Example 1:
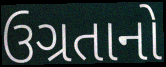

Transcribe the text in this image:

ઉગ્રતાનો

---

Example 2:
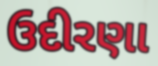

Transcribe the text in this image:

ઉદીરણા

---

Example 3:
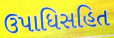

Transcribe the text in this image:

ઉપાધિસહિત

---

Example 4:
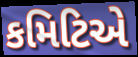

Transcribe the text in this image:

કમિટિએ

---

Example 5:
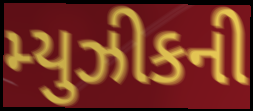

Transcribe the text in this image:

મ્યુઝીકની